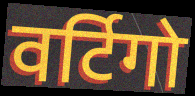
वर्टिगो